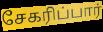
சேகரிப்பார்